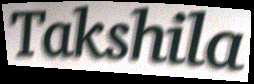
Takshila